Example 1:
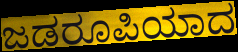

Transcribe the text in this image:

ಜಡರೂಪಿಯಾದ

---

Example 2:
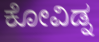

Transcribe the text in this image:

ಕೋವಿಡ್ನ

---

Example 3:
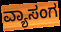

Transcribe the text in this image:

ವ್ಯಾಸಂಗ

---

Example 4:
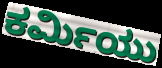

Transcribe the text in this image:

ಕರ್ಮಿಯು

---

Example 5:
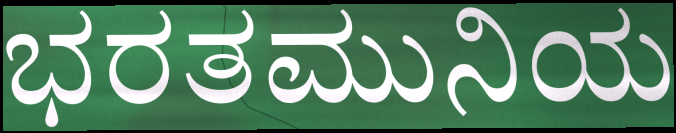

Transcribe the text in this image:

ಭರತಮುನಿಯ